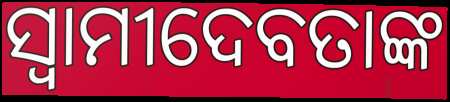
ସ୍ୱାମୀଦେବତାଙ୍କ